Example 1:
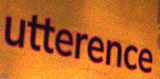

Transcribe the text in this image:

utterence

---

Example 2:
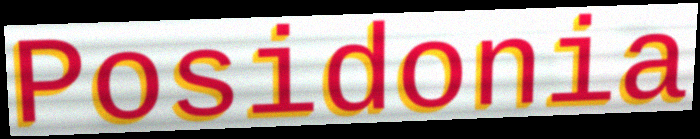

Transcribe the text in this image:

Posidonia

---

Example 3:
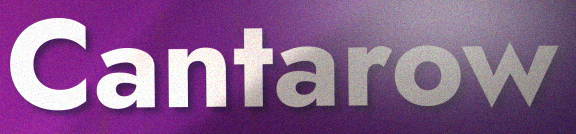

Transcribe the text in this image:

Cantarow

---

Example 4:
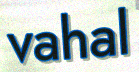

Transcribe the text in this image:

vahal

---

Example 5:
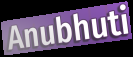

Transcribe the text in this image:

Anubhuti